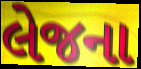
લેજના